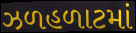
ઝળહળાટમાં